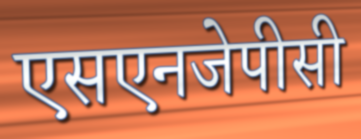
एसएनजेपीसी